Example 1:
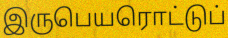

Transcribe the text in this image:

இருபெயரொட்டுப்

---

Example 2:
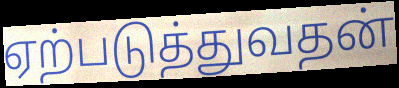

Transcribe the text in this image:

ஏற்படுத்துவதன்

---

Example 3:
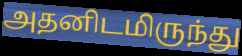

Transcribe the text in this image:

அதனிடமிருந்து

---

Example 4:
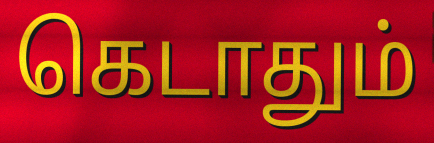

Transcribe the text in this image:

கெடாதும்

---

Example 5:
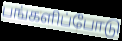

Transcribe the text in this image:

பங்களிப்போடு